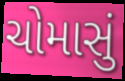
ચોમાસું